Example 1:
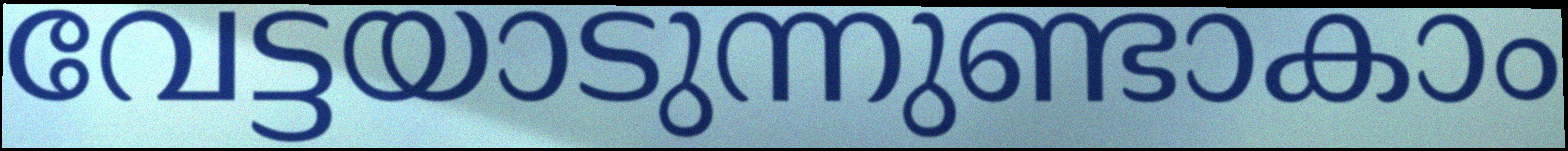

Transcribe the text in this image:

വേട്ടയാടുന്നുണ്ടാകാം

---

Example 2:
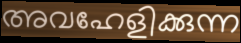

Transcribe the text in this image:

അവഹേളിക്കുന്ന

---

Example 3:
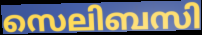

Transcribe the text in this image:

സെലിബസി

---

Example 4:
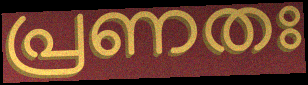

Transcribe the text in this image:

പ്രണതഃ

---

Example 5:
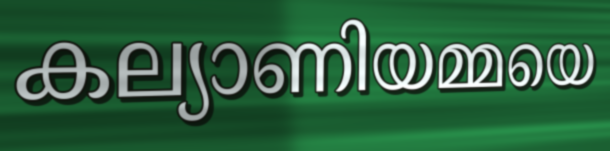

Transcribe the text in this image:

കല്യാണിയമ്മയെ